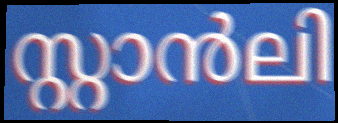
സ്റ്റാൻലി